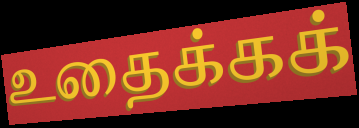
உதைக்கக்